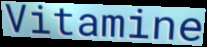
Vitamine